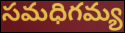
సమధిగమ్య